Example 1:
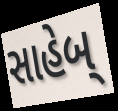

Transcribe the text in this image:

સાહેબ્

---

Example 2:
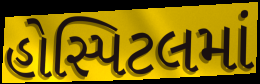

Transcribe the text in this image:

હોસ્પિટલમાં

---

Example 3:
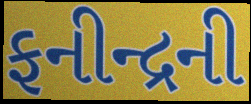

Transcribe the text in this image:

ફનીન્દ્રની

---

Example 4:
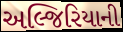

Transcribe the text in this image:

અલ્જિરિયાની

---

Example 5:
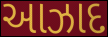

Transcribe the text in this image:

આઝાદ